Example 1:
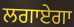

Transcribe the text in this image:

ਲਗਾਏਗਾ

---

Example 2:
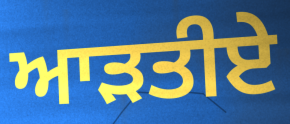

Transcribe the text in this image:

ਆੜਤੀਏ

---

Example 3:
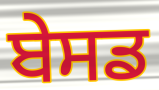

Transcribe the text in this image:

ਬੇਸਡ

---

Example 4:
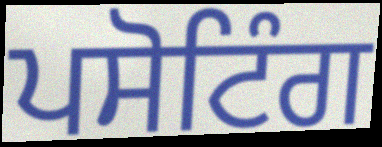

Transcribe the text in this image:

ਪਸੋਟਿੰਗ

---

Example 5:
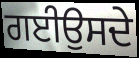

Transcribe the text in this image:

ਗਈਉਸਦੇ